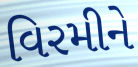
વિરમીને